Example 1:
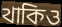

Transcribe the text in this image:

থাকিও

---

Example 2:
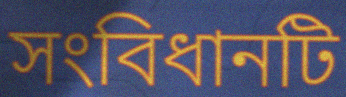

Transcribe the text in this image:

সংবিধানটি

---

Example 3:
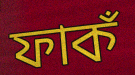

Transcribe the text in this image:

ফাকঁ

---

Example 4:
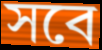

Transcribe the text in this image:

সবে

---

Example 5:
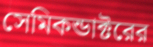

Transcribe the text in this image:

সেমিকন্ডাক্টরের